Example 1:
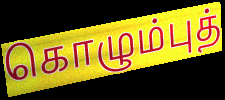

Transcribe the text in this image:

கொழும்புத்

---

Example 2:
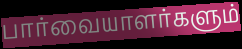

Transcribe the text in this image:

பார்வையாளர்களும்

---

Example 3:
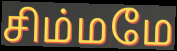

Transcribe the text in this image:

சிம்மமே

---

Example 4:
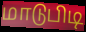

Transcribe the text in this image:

மாடுபிடி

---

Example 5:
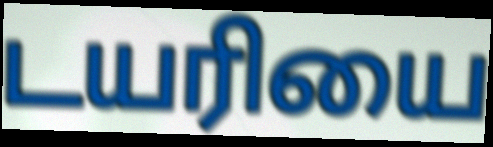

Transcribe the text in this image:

டயரியை